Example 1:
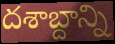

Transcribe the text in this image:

దశాబ్దాన్ని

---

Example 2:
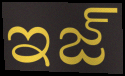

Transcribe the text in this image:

ఇజ్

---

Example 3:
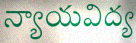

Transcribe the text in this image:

న్యాయవిద్య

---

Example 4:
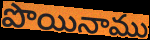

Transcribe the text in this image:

పొయినాము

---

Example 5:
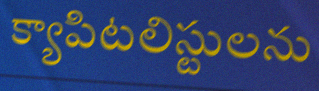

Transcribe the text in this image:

క్యాపిటలిస్టులను